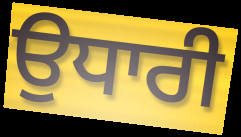
ਉਧਾਰੀ